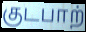
குடபாற்